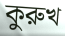
কুরুখ